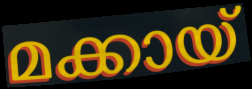
മക്കായ്